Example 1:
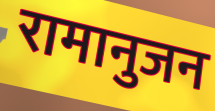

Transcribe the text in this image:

रामानुजन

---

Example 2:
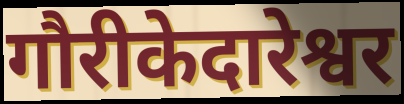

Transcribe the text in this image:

गौरीकेदारेश्वर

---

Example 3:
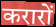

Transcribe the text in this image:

करारों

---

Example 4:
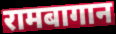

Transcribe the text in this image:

रामबागान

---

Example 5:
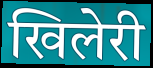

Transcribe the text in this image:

खिलेरी